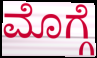
ಮೊಗ್ಗೆ